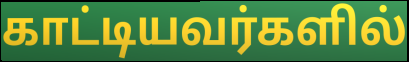
காட்டியவர்களில்